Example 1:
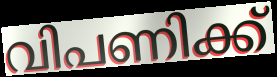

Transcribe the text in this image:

വിപണിക്ക്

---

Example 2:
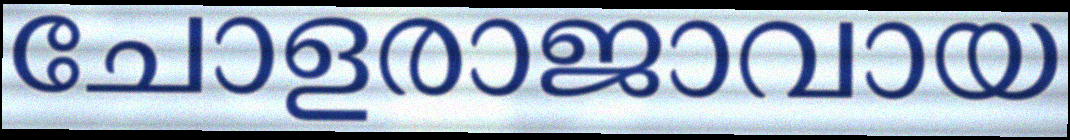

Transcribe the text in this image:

ചോളരാജാവായ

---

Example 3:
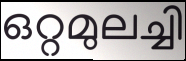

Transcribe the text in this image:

ഒറ്റമുലച്ചി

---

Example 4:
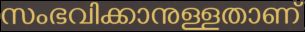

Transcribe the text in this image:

സംഭവിക്കാനുള്ളതാണ്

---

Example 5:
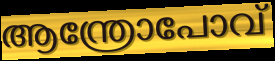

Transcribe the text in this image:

ആന്ത്രോപോവ്